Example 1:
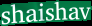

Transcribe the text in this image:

shaishav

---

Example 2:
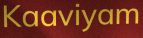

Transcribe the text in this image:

Kaaviyam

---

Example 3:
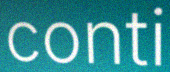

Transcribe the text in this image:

conti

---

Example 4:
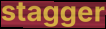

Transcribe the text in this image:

stagger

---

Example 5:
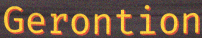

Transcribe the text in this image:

Gerontion